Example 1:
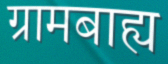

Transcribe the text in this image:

ग्रामबाह्य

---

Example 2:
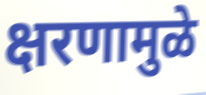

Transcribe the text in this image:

क्षरणामुळे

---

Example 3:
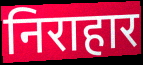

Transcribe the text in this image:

निराहार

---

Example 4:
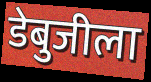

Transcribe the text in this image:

डेबुजीला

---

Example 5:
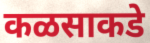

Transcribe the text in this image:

कळसाकडे